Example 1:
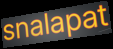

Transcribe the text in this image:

snalapat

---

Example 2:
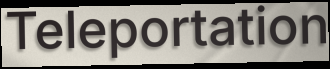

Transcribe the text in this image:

Teleportation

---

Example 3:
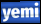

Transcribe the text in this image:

yemi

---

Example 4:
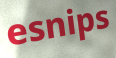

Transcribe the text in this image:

esnips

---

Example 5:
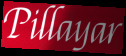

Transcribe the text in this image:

Pillayar